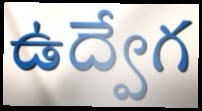
ఉద్వేగ